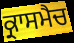
ਕ੍ਰਾਸਮੈਚ